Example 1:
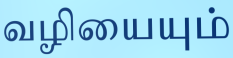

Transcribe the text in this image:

வழியையும்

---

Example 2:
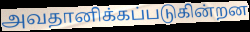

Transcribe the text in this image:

அவதானிக்கப்படுகின்றன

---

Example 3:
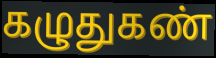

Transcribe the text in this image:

கழுதுகண்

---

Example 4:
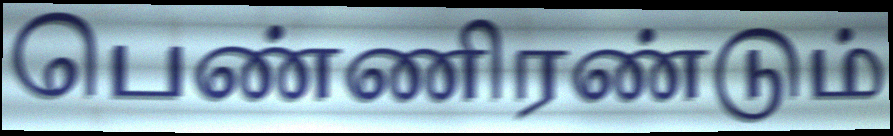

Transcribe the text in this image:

பெண்ணிரண்டும்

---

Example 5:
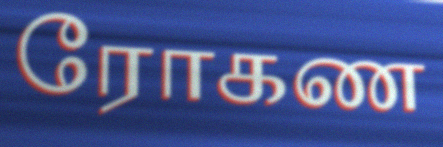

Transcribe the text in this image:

ரோகண